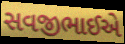
સવજીભાઈએ